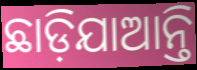
ଛାଡ଼ିଯାଆନ୍ତି